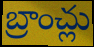
బ్రాంచ్లు